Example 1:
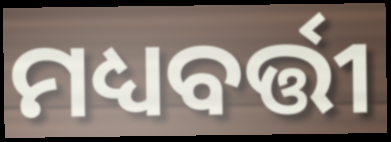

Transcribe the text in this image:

ମଧ୍ୟବର୍ତ୍ତୀ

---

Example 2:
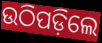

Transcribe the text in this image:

ଉଠିପଡ଼ିଲେ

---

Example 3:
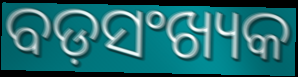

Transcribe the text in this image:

ବଡ଼ସଂଖ୍ୟକ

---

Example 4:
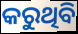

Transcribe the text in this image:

କରୁଥିବି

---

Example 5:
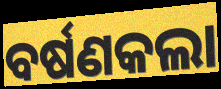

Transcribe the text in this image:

ବର୍ଷଣକଲା